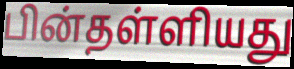
பின்தள்ளியது